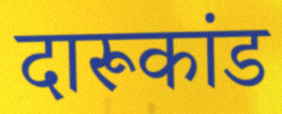
दारूकांड